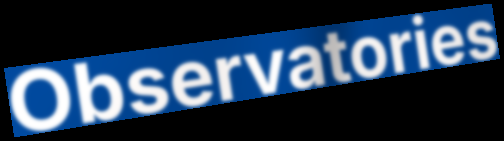
Observatories